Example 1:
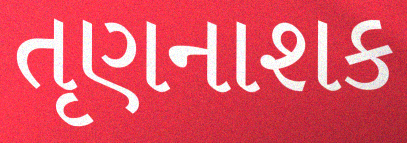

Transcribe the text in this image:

તૃણનાશક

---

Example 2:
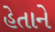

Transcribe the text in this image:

હેતાને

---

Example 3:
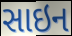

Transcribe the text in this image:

સાઇન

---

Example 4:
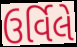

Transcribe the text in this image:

ઉર્વિલે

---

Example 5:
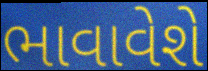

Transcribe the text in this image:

ભાવાવેશે